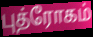
புத்ரோகம்